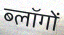
ब्‍लॉगों